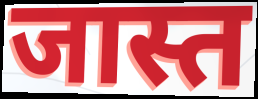
जास्त